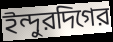
ইন্দুরদিগের